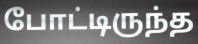
போட்டிருந்த